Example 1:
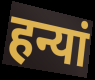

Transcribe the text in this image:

हन्यां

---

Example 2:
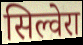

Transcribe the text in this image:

सिल्वेरा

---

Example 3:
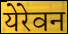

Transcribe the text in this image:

येरेवन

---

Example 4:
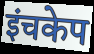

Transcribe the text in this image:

इंचकेप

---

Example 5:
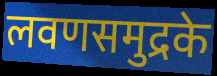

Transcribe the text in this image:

लवणसमुद्रके